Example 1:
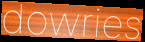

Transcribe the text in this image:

dowries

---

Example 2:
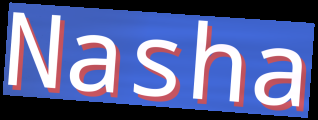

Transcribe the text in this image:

Nasha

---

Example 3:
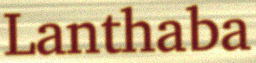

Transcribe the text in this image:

Lanthaba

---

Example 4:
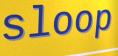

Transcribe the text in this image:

sloop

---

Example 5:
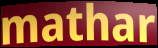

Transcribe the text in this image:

mathar